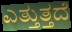
ಎತ್ತುತ್ತದೆ